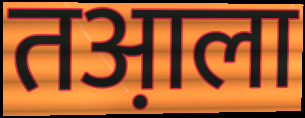
तआ़ला